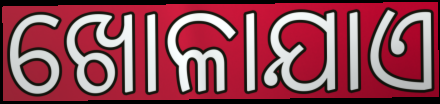
ଖୋଳାଯାଏ